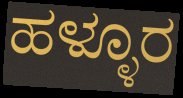
ಹಳ್ಳೂರ